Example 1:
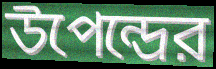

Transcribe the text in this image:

উপেন্দ্রের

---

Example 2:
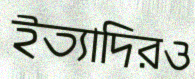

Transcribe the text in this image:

ইত্যাদিরও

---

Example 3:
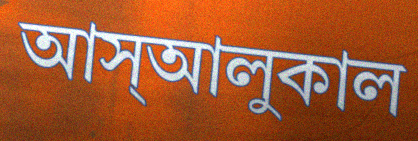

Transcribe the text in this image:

আস্আলুকাল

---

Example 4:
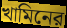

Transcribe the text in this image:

খামিনের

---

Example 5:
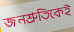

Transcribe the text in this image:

জনশ্রুতিকেই